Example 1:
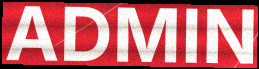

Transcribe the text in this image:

ADMIN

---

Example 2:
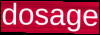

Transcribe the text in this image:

dosage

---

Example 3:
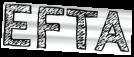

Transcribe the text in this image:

EFTA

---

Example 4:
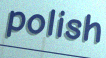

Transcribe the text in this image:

polish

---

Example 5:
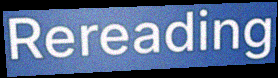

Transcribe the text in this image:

Rereading